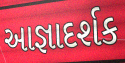
આજ્ઞાદર્શક